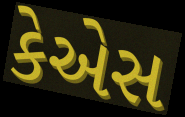
કેએસ